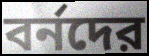
বর্নদের